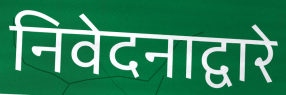
निवेदनाद्वारे